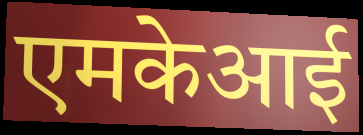
एमकेआई